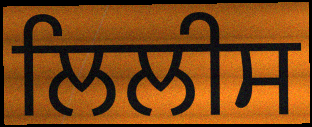
ਲਿਲੀਸ